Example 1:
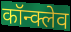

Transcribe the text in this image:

कॉन्क्लेव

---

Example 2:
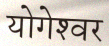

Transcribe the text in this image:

योगेश्‍वर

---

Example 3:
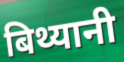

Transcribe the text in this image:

बिथ्यानी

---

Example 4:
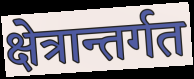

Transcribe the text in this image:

क्षेत्रान्तर्गत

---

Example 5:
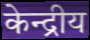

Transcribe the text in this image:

केन्‍द्रीय